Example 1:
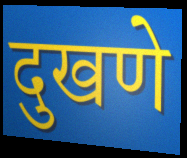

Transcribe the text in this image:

दुखणे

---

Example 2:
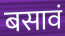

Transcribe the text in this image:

बसावं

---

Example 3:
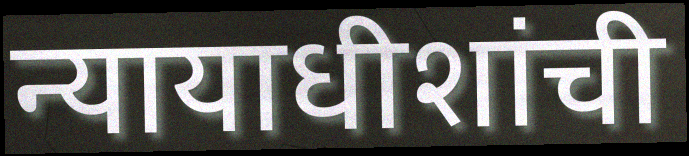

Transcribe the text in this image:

न्यायाधीशांची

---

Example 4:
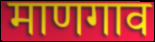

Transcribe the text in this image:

माणगाव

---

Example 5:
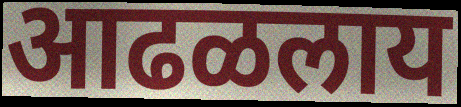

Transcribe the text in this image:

आढळलाय